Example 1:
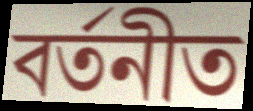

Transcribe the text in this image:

বৰ্তনীত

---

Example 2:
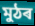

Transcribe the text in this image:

মুঠৰ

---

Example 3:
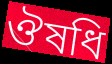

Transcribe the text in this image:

ঔষধি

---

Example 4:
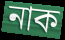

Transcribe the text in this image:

নাক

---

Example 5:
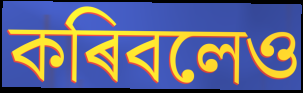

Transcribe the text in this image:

কৰিবলেও